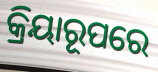
କ୍ରିୟାରୂପରେ